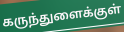
கருந்துளைக்குள்